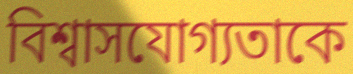
বিশ্বাসযোগ্যতাকে